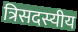
त्रिसदस्यीय